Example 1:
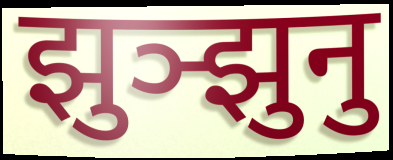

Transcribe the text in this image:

झुञ्झुनु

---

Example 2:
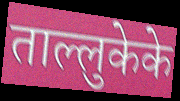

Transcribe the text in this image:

ताल्लुकेके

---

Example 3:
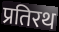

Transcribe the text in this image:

प्रतिरथ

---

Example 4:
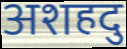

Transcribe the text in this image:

अशहदु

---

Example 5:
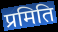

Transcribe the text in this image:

प्रमिति